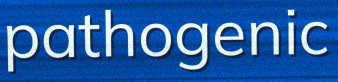
pathogenic